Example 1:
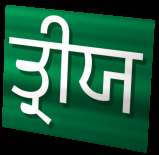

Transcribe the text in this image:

ਤ੍ਰੀਯ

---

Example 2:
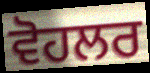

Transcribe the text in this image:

ਵੋਹਲਰ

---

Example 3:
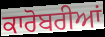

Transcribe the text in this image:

ਕਾਰੋਬਰੀਆਂ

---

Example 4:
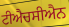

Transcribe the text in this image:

ਟੀਐਚਸੀਐਨ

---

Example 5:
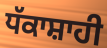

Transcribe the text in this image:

ਧੱਕਾਸ਼ਾਹੀ